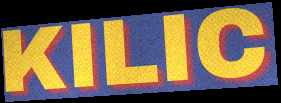
KILIC